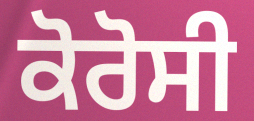
ਕੋਰੋਸੀ